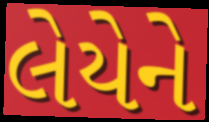
લેયેને